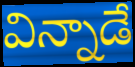
విన్నాడే